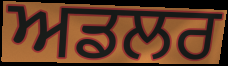
ਅਡਲਰ